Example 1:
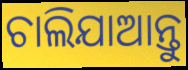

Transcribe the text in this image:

ଚାଲିଯାଆନ୍ତୁ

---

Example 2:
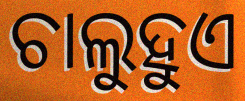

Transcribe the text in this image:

ଚାଲୁହୁଏ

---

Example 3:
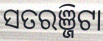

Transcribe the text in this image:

ସତରଞ୍ଜିଟା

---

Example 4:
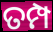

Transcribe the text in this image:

ତମ୍ପ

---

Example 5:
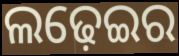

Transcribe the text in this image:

ଲଢ଼େଇର